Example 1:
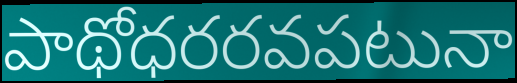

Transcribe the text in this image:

పాథోధరరవపటునా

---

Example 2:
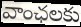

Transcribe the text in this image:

వాంఛలకు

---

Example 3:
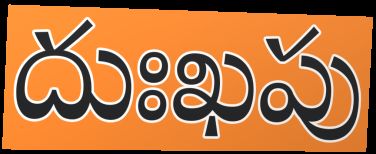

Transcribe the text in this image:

దుఃఖపు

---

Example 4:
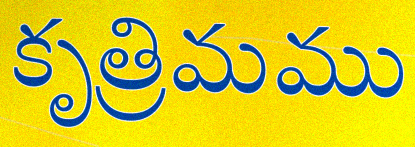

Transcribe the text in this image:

కృత్రిమము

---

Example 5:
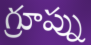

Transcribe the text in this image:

గ్రూప్ను